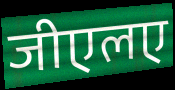
जीएलए